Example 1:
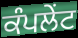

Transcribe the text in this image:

ਕੰਪਲੇਂਟ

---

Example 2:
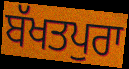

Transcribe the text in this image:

ਬੱਖਤਪੁਰਾ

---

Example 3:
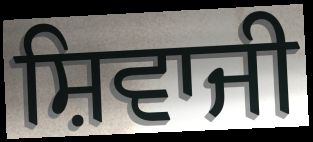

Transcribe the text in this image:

ਸ਼ਿਵਾਜੀ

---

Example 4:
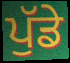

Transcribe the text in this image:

ਪੁੱਡੇ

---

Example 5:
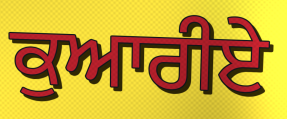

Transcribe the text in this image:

ਕੁਆਰੀਏ